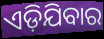
ଏଡ଼ିଯିବାର